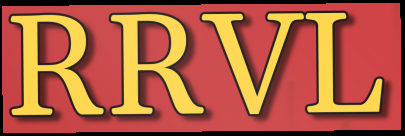
RRVL